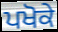
ਪਖੋਕੇ